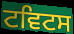
ਟਵਿਟਸ